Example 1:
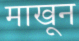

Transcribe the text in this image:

माखून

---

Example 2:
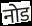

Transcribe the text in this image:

नोड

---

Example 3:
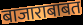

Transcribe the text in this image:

बाजाराबाबत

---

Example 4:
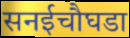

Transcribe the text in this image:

सनईचौघडा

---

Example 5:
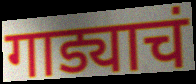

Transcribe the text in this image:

गाड्याचं